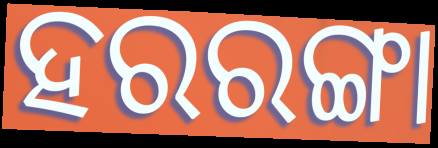
ହରରଙ୍ଗା